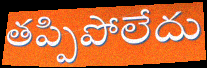
తప్పిపోలేదు